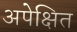
अपेक्षित